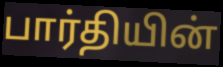
பார்தியின்